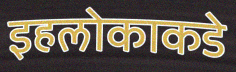
इहलोकाकडे